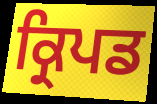
ਕ੍ਰਿਪਡ